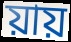
য়ায়